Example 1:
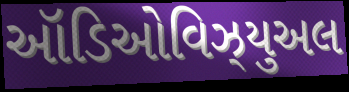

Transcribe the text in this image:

ઑડિઓવિઝ્યુઅલ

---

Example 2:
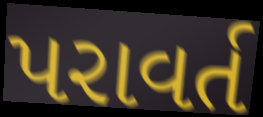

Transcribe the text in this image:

પરાવર્ત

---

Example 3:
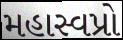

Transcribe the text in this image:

મહાસ્વપ્રો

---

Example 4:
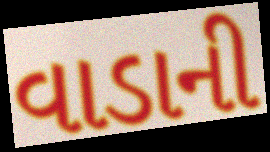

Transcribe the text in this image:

વાડાની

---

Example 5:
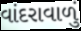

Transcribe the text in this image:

વાંદરાવાળું